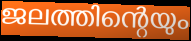
ജലത്തിന്റെയും